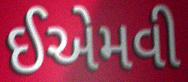
ઈએમવી